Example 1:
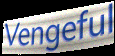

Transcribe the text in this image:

Vengeful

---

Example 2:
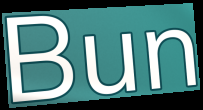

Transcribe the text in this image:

Bun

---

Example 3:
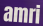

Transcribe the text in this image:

amri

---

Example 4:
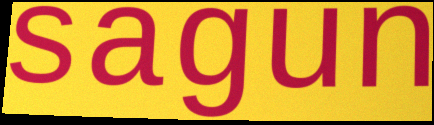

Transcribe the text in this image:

sagun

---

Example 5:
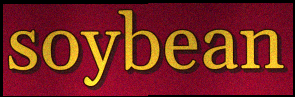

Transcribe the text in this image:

soybean